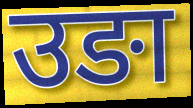
उङा